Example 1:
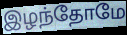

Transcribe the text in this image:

இழந்தோமே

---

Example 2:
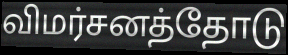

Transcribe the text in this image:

விமர்சனத்தோடு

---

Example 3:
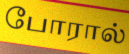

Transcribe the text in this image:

போரால்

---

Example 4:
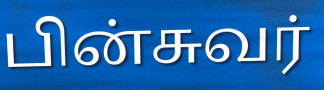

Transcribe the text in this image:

பின்சுவர்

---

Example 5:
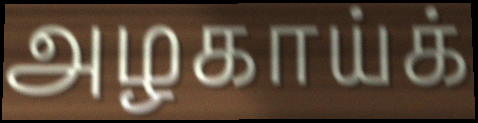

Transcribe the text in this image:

அழகாய்க்